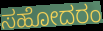
ಸಹೋದರಂ